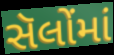
સૅલોંમાં